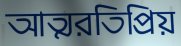
আত্মরতিপ্রিয়